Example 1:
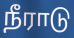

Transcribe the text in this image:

நீராடு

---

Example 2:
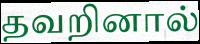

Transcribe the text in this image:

தவறினால்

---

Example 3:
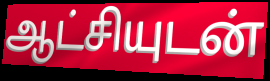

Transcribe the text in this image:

ஆட்சியுடன்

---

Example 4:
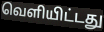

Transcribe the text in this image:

வெளியிட்டது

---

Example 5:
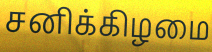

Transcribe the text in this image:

சனிக்கிழமை